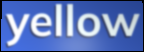
yellow